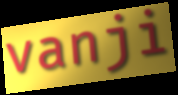
vanji